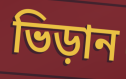
ভিড়ান